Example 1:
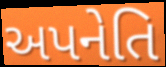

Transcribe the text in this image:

અપનેતિ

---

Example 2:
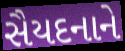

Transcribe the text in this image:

સૈયદનાને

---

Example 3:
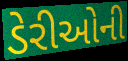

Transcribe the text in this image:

ડેરીઓની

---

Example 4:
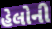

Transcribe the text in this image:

હેલોની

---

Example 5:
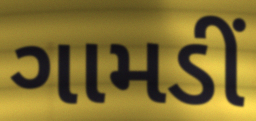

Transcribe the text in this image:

ગામડીં